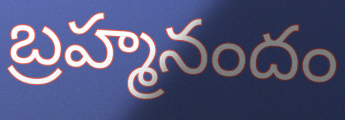
బ్రహ్మనందం